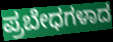
ಪ್ರಬೇಧಗಳಾದ